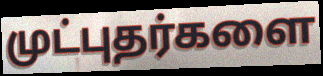
முட்புதர்களை